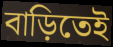
বাড়িতেই